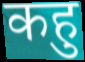
कहु